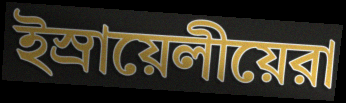
ইস্রায়েলীয়েরা